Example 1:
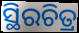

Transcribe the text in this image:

ସ୍ଥିରଚିତ୍ର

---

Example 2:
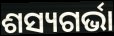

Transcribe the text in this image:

ଶସ୍ୟଗର୍ଭା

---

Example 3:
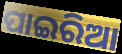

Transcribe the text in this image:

ପାଇରିଆ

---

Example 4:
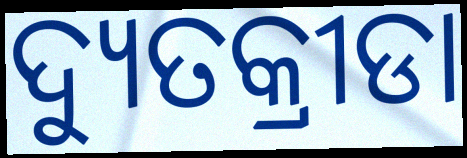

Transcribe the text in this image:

ଦ୍ୟୁତକ୍ରୀଡା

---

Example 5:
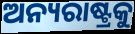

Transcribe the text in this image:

ଅନ୍ୟରାଷ୍ଟ୍ରକୁ